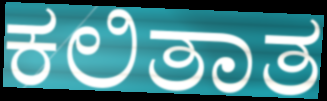
ಕಲಿತಾತ